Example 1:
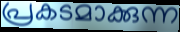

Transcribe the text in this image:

പ്രകടമാക്കുന്ന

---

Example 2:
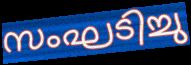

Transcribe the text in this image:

സംഘടിച്ചു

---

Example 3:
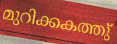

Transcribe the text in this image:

മുറിക്കകത്തു്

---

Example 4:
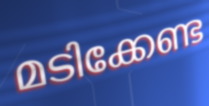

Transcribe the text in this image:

മടിക്കേണ്ട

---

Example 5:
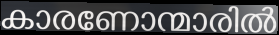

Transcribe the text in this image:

കാരണോന്മാരിൽ